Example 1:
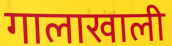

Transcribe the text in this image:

गालाखाली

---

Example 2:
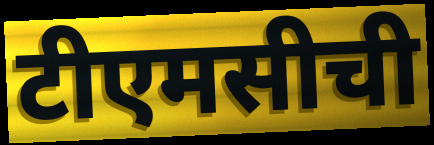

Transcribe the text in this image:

टीएमसीची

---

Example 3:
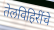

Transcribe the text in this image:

तेलविहिरींचे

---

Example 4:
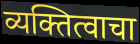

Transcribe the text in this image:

व्यक्तित्वाचा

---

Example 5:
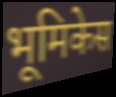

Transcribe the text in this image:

भूमिकेस